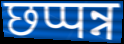
छप्पन्न